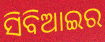
ସିବିଆଇର